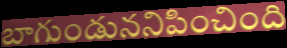
బాగుండుననిపించింది